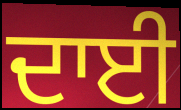
ਦਾਈ